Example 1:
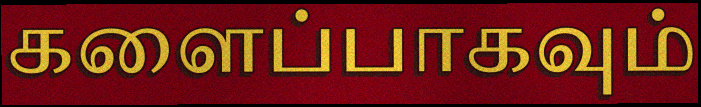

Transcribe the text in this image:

களைப்பாகவும்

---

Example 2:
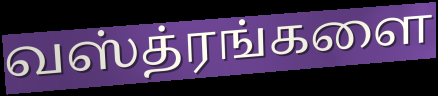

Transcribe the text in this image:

வஸ்த்ரங்களை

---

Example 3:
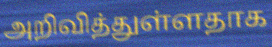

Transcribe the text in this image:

அறிவித்துள்ளதாக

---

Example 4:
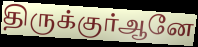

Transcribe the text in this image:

திருக்குர்ஆனே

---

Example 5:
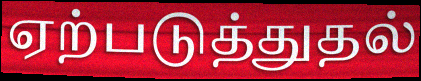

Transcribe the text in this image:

ஏற்படுத்துதல்